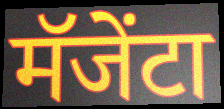
मॅजेंटा